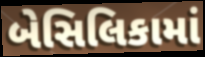
બેસિલિકામાં